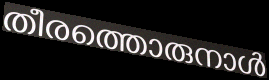
തീരത്തൊരുനാൾ